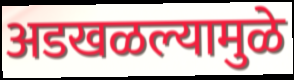
अडखळल्यामुळे